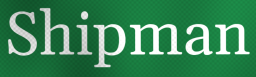
Shipman